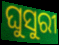
ଘୁସୁରୀ